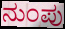
ನುಂಪು